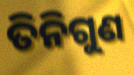
ତିନିଗୁଣ